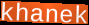
khanek